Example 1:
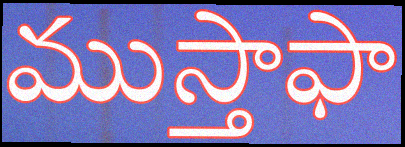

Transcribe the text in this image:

ముస్తాఫా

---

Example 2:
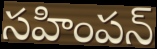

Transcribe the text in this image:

సహింపన్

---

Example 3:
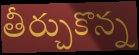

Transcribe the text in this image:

తీర్చుకొన్న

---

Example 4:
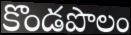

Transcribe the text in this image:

కొండపొలం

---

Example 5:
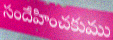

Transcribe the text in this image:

సందేహించకుము